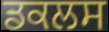
ਡਕਲਸ